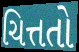
ચિત્તતો